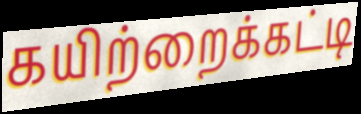
கயிற்றைக்கட்டி